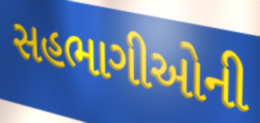
સહભાગીઓની